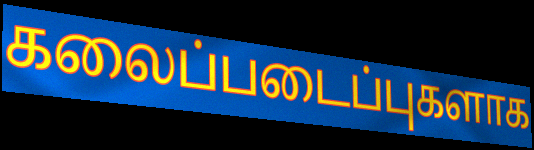
கலைப்படைப்புகளாக